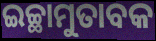
ଇଚ୍ଛାମୁତାବକ